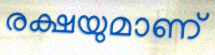
രക്ഷയുമാണ്